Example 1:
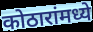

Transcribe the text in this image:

कोठारांमध्ये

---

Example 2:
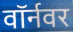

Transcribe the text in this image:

वॉर्नवर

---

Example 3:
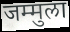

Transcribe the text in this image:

जम्मुला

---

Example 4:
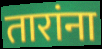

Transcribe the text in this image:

तारांना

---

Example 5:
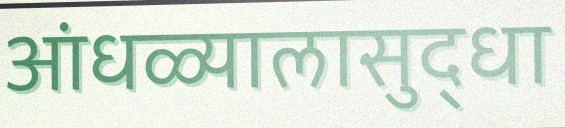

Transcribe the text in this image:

आंधळ्यालासुद्धा